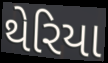
થેરિયા